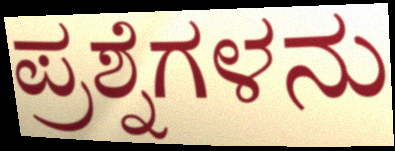
ಪ್ರಶ್ನೆಗಳನು